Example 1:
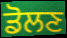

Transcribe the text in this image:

ਡੋਲਣ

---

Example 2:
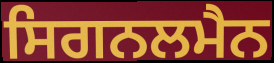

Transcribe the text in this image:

ਸਿਗਨਲਮੈਨ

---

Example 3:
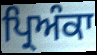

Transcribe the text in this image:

ਪ੍ਰਿਅੰਕਾ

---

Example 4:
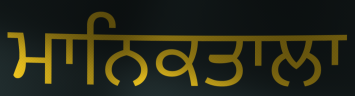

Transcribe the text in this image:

ਮਾਨਿਕਤਾਲਾ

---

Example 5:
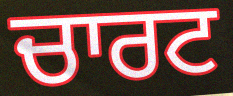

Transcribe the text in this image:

ਚਾਰਟ